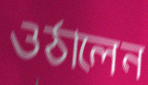
ওঠালেন